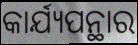
କାର୍ଯ୍ୟପନ୍ଥାର